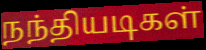
நந்தியடிகள்